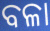
ବଳା